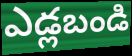
ఎడ్లబండి